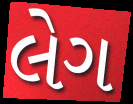
લેગ